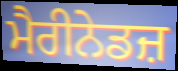
ਮੈਰੀਨੇਡਜ਼